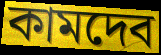
কামদেব